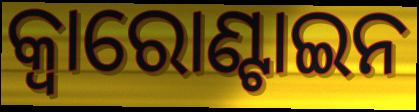
କ୍ୱାରୋଣ୍ଟାଇନ